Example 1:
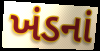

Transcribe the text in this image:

ખંડનાં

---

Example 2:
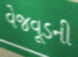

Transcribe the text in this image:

વેજવૂડની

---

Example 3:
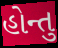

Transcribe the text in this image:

હોન્તુ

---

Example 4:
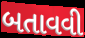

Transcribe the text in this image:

બતાવવી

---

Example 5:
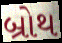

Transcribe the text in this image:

બ્રોથ